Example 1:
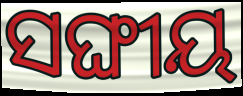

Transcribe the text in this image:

ସଙ୍ଘୀୟ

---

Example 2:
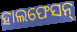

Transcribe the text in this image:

ହାଲଫେସନ୍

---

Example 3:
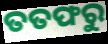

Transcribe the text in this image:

ତତଫରୁ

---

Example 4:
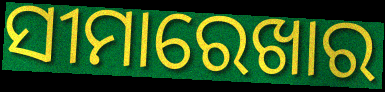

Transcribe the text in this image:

ସୀମାରେଖାର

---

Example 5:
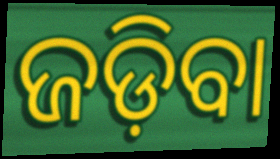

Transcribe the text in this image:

ଜଡ଼ିବା